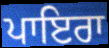
ਪਾਇਰਾ